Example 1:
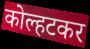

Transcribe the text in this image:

कोल्हटकर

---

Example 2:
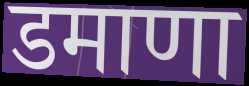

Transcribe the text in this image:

डमाणा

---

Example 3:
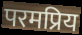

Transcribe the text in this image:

परमप्रिय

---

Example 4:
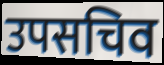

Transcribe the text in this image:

उपसचिव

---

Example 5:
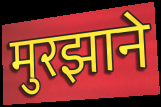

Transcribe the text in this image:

मुरझाने